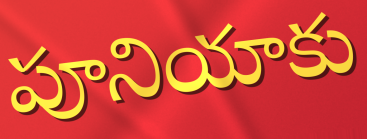
పూనియాకు